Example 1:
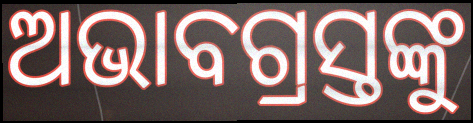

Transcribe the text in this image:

ଅଭାବଗ୍ରସ୍ତଙ୍କୁ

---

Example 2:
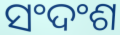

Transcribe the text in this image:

ସଂଦଂଶ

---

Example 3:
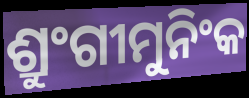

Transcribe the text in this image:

ଶ୍ରୁଂଗୀମୁନିଂକ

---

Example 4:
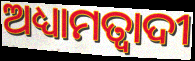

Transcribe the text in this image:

ଅଧ୍ୟାମତ୍ବାଦୀ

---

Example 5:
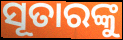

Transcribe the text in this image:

ସୂତାରଙ୍କୁ